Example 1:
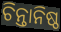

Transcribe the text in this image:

ଚିନ୍ତାନିଷ୍ଠ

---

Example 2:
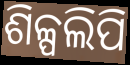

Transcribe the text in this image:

ଶିଳ୍ପଲିପି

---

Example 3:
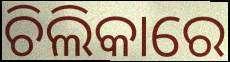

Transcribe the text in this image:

ଚିଲିକାରେ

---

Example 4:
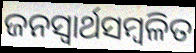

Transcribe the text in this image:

ଜନସ୍ବାର୍ଥସମ୍ବଳିତ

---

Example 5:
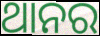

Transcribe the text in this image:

ଥାନର